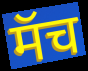
मॅच